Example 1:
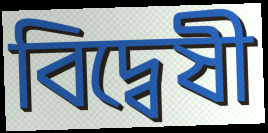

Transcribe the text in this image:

বিদ্বেষী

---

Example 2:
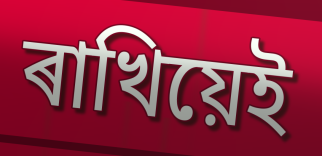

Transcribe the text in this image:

ৰাখিয়েই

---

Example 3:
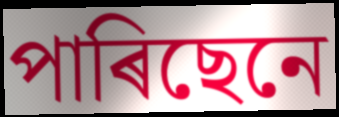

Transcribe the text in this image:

পাৰিছেনে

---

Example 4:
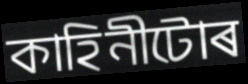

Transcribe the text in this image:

কাহিনীটোৰ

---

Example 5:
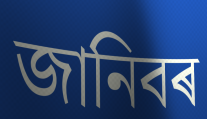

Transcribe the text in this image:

জানিবৰ